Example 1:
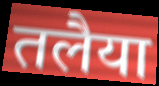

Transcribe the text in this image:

तलैया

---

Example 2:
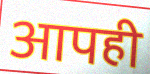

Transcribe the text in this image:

आपही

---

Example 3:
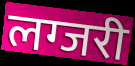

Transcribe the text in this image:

लग्जरी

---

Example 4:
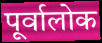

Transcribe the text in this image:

पूर्वालोक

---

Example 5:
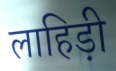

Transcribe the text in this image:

लाहिड़ी